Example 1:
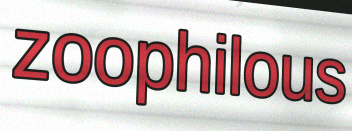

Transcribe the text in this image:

zoophilous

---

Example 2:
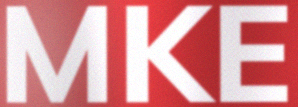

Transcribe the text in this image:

MKE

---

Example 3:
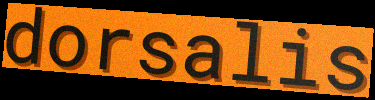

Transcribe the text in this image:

dorsalis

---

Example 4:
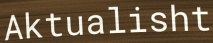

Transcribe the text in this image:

Aktualisht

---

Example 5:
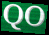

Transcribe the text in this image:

QO